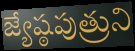
జ్యేష్ఠపుత్రుని